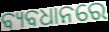
ବ୍ୟବଧାନରେ